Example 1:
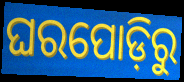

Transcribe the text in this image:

ଘରପୋଡ଼ିରୁ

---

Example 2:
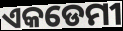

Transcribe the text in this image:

ଏକଡେମୀ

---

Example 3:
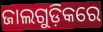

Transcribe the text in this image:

ଜାଲଗୁଡ଼ିକରେ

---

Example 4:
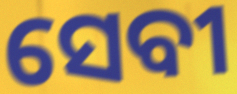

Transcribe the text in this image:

ସେବୀ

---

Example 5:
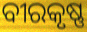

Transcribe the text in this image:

ବୀରକୃଷ୍ଣ